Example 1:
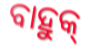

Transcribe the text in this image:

ବାହୁକ୍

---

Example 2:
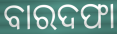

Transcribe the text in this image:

ବାରଦଫା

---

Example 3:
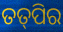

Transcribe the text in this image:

ତତ୍‌ପିର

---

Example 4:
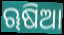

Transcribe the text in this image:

ୠଷିଆ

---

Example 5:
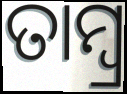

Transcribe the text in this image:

ତାମ୍ବ୍ର